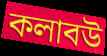
কলাবউ